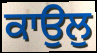
ਕਾਉਲੁ